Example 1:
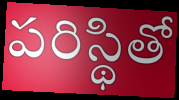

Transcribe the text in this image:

పరిస్థితో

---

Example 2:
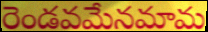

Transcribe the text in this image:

రెండవమేనమామ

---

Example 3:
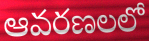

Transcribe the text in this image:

ఆవరణలలో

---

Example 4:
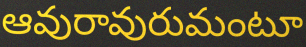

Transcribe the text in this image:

ఆవురావురుమంటూ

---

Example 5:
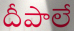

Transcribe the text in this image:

దీపాలే